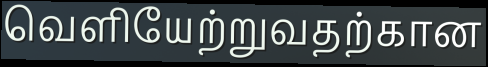
வெளியேற்றுவதற்கான